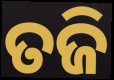
ତଜି